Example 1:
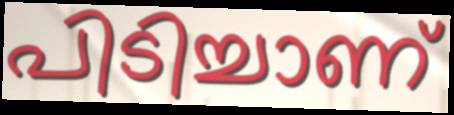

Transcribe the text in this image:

പിടിച്ചാണ്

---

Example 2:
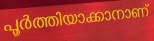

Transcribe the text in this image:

പൂർത്തിയാക്കാനാണ്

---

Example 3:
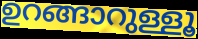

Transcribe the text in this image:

ഉറങ്ങാറുള്ളൂ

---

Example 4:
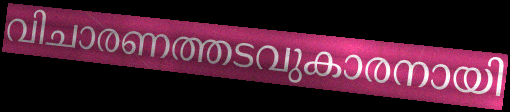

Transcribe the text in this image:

വിചാരണത്തടവുകാരനായി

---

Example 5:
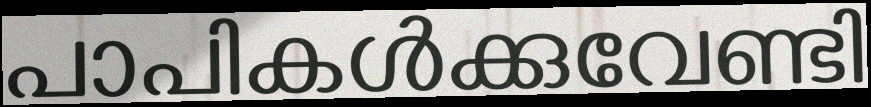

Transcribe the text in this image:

പാപികൾക്കുവേണ്ടി